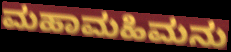
ಮಹಾಮಹಿಮನು